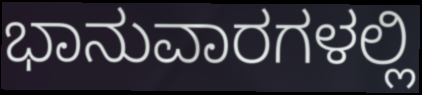
ಭಾನುವಾರಗಳಲ್ಲಿ